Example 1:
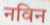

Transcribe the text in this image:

नविन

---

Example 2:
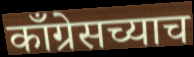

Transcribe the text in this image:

काँग्रेसच्याच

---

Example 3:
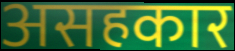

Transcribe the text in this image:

असहकार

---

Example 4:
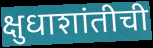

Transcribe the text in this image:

क्षुधाशांतीची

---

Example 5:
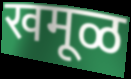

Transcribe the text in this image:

खमूळ